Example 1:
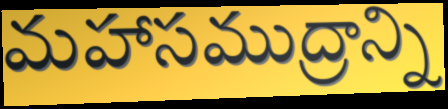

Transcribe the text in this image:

మహాసముద్రాన్ని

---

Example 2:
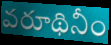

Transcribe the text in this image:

వరూథినీం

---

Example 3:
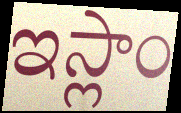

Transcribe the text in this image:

ఇస్లాం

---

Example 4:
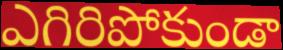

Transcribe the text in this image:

ఎగిరిపోకుండా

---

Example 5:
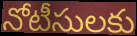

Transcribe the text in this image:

నోటీసులకు